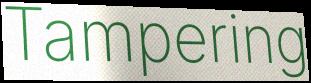
Tampering